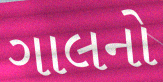
ગાલનો